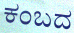
ಕಂಬದ